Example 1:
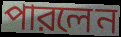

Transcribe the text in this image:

পারলেন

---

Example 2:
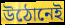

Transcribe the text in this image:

উঠোনেই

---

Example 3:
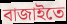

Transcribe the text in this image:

বাজাইতে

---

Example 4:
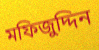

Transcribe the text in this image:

মফিজুদ্দিন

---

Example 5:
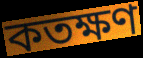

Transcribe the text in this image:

কতক্ষণ